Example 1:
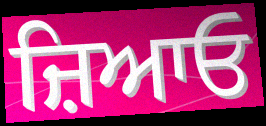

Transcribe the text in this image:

ਜ਼ਿਆਓ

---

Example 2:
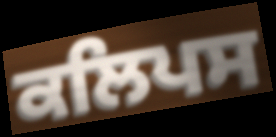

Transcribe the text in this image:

ਕਲਿਪਸ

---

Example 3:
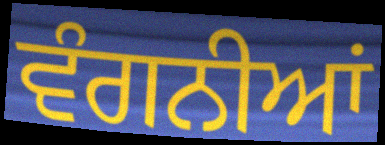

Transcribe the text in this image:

ਵੰਗਨੀਆਂ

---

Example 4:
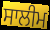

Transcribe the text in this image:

ਸਾਲੀਮ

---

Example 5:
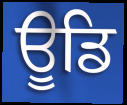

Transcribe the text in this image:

ਊਡਿ